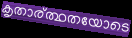
കൃതാര്ത്ഥതയോടെ